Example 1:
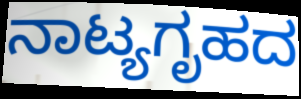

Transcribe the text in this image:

ನಾಟ್ಯಗೃಹದ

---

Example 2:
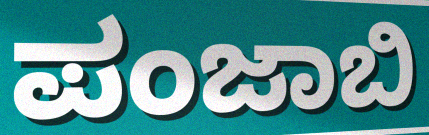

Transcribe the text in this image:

ಪಂಜಾಬಿ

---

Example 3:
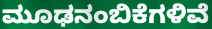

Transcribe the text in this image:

ಮೂಢನಂಬಿಕೆಗಳಿವೆ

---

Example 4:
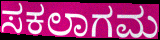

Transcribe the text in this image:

ಸಕಲಾಗಮ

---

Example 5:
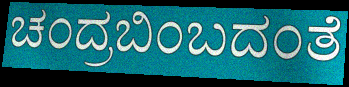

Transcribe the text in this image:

ಚಂದ್ರಬಿಂಬದಂತೆ